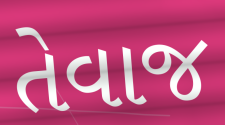
તેવાજ